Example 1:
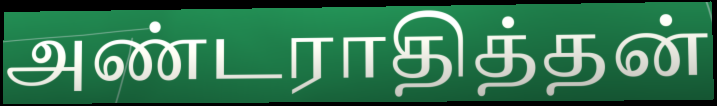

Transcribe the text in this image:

அண்டராதித்தன்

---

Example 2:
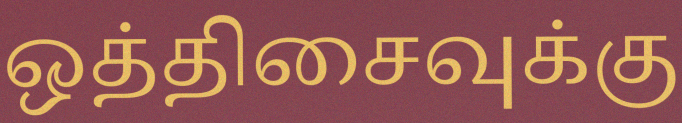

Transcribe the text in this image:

ஒத்திசைவுக்கு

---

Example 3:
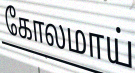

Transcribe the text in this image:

கோலமாய்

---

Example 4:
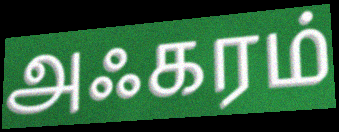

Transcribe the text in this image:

அஃகரம்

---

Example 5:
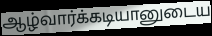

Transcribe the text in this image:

ஆழ்வார்க்கடியானுடைய